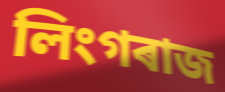
লিংগৰাজ